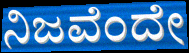
ನಿಜವೆಂದೇ